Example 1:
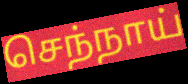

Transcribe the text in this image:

செந்நாய்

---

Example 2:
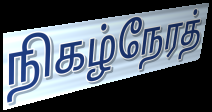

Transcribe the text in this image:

நிகழ்நேரத்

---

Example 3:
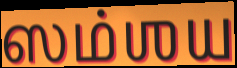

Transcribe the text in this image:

ஸம்ஶய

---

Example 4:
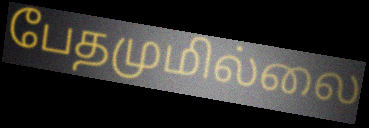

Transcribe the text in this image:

பேதமுமில்லை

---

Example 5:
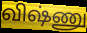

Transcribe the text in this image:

விஷ்ணு